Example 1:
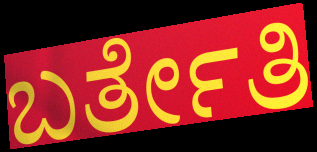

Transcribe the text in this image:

ಬರ್ತೇತಿ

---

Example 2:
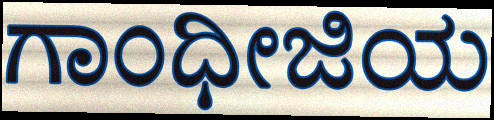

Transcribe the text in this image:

ಗಾಂಧೀಜಿಯ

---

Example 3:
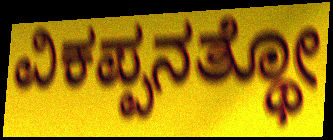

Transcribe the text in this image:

ವಿಕಪ್ಪನತ್ಥೋ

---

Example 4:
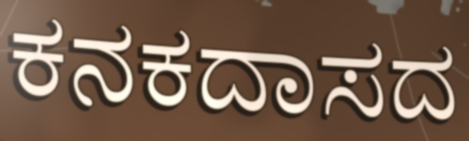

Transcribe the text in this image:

ಕನಕದಾಸದ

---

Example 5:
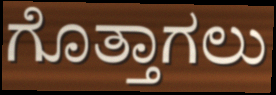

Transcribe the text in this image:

ಗೊತ್ತಾಗಲು